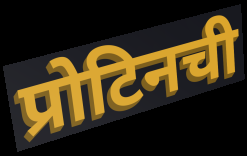
प्रोटिनची